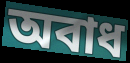
অবাধ